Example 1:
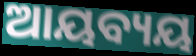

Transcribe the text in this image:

ଆୟବ୍ୟୟ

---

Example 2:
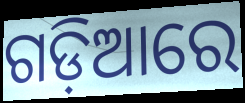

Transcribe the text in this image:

ଗଡ଼ିଆରେ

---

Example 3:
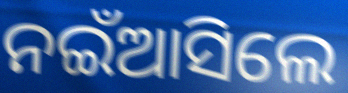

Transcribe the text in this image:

ନଇଁଆସିଲେ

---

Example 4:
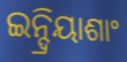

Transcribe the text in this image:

ଇନ୍ଦ୍ରିୟାଶାଂ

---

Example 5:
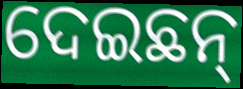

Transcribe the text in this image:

ଦେଇଛନ୍